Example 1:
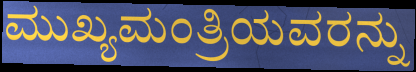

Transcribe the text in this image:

ಮುಖ್ಯಮಂತ್ರಿಯವರನ್ನು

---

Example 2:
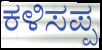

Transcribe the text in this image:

ಕಳಿಸಪ್ಪ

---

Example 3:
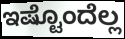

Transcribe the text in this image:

ಇಷ್ಟೊಂದೆಲ್ಲ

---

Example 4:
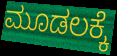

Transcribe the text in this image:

ಮೂಡಲಕ್ಕೆ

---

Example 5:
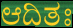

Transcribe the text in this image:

ಆದಿತಃ